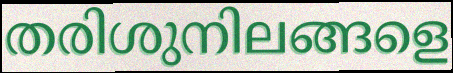
തരിശുനിലങ്ങളെ